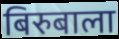
बिरुबाला